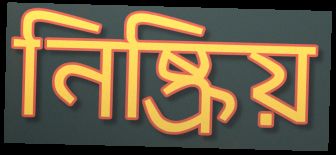
নিষ্ক্ৰিয়